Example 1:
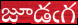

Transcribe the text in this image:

జూడఁగ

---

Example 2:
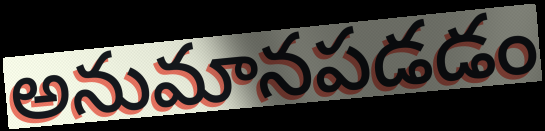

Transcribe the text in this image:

అనుమానపడడం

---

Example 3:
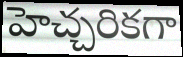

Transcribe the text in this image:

హెచ్చరికగా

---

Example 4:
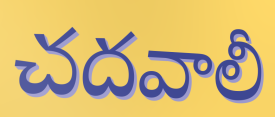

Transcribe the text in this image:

చదవాలీ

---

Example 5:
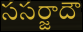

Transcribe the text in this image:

ససర్జాదౌ